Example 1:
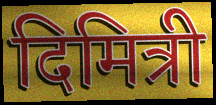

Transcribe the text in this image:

दिमित्री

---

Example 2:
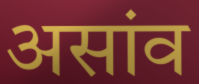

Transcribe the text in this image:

असांव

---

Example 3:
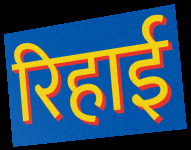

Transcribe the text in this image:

रिहाई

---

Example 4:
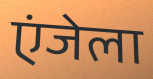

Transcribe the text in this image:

एंजेला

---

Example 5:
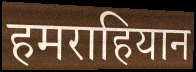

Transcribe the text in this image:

हमराहियान